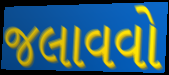
જલાવવો